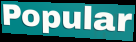
Popular